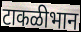
टाकळीभान